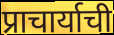
प्राचार्याची